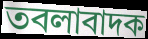
তবলাবাদক